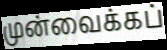
முன்வைக்கப்